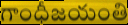
గాంధీజయంతి